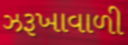
ઝરૂખાવાળી